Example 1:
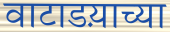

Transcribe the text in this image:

वाटाडय़ाच्या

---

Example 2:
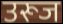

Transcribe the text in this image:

उरूज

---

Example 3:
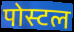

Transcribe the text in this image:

पोस्टल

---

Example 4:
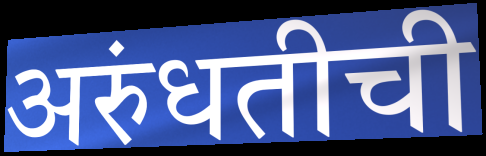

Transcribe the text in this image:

अरुंधतीची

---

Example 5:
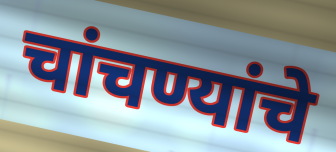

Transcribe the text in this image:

चांचण्यांचे